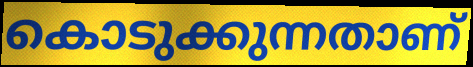
കൊടുക്കുന്നതാണ്